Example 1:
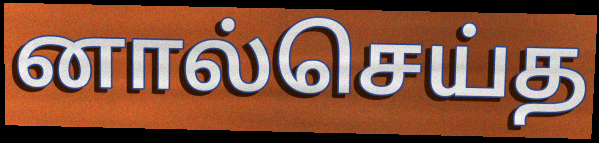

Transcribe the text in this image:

னால்செய்த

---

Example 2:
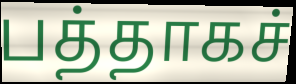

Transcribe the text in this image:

பத்தாகச்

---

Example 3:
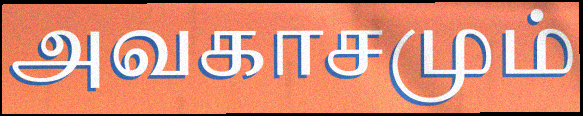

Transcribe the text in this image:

அவகாசமும்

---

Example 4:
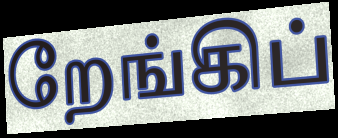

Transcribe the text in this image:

றேங்கிப்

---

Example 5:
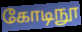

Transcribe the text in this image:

கோடிநூ